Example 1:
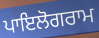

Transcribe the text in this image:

ਪਾਇਲੋਗਰਾਮ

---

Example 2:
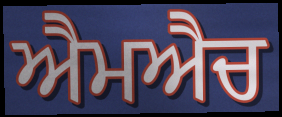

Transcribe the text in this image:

ਐਮਐਚ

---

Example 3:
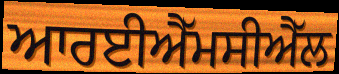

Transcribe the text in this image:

ਆਰਈਐੱਮਸੀਐੱਲ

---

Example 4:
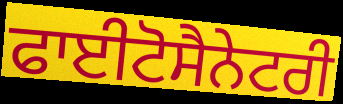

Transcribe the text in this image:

ਫਾਈਟੋਸੈਨੇਟਰੀ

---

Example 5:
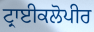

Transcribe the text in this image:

ਟ੍ਰਾਈਕਲੋਪੀਰ